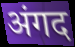
अंगद